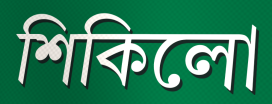
শিকিলো